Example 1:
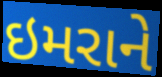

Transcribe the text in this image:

ઇમરાને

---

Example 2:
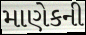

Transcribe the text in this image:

માણેકની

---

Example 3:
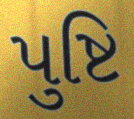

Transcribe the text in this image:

પુષ્ટિ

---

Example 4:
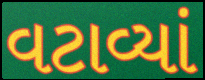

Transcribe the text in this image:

વટાવ્યાં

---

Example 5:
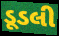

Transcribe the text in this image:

ડૂડલી